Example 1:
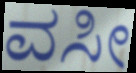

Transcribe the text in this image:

ವಸೀ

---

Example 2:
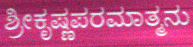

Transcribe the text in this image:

ಶ್ರೀಕೃಷ್ಣಪರಮಾತ್ಮನು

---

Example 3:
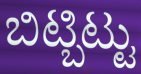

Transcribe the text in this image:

ಬಿಟ್ಬಿಟ್ಟು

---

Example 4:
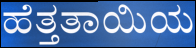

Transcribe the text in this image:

ಹೆತ್ತತಾಯಿಯ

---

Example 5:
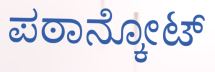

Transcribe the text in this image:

ಪಠಾನ್ಕೋಟ್